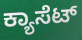
ಕ್ಯಾಸೆಟ್